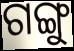
ଗଙ୍ଗୁ